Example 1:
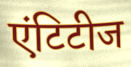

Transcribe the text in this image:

एंटिटीज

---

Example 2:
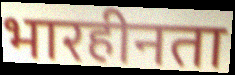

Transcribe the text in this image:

भारहीनता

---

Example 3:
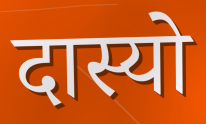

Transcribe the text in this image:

दास्यो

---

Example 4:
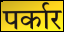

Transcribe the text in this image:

पर्कार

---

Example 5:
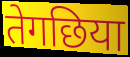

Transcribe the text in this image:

तेगछिया